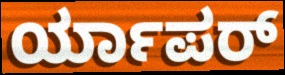
ರ್ಯಾಪರ್